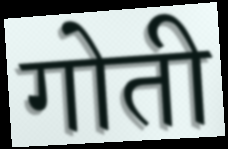
गोती